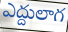
ఎద్దులాగ